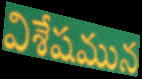
విశేషమున